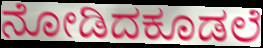
ನೋಡಿದಕೂಡಲೆ